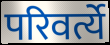
परिवर्त्ये